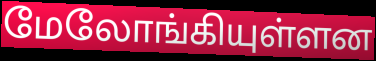
மேலோங்கியுள்ளன